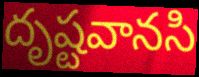
దృష్టవానసి